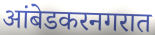
आंबेडकरनगरात